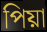
পিয়া